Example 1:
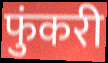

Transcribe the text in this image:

फुंकरी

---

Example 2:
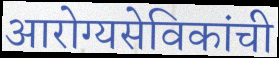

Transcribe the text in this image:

आरोग्यसेविकांची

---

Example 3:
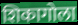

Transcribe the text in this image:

शिकागोला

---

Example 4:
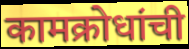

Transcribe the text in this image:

कामक्रोधांची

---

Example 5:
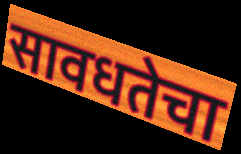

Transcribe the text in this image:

सावधतेचा